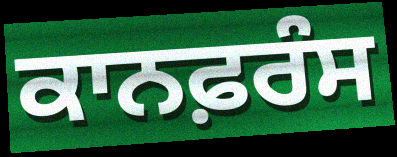
ਕਾਨਫ਼ਰੰਸ